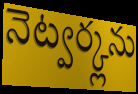
నెట్వర్క్లను